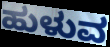
ಹುಳುವ